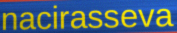
nacirasseva